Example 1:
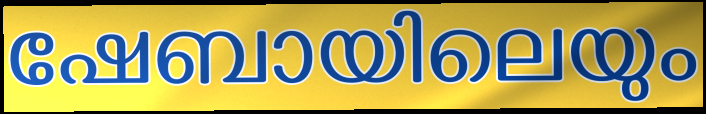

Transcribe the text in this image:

ഷേബായിലെയും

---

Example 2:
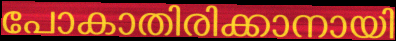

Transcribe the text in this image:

പോകാതിരിക്കാനായി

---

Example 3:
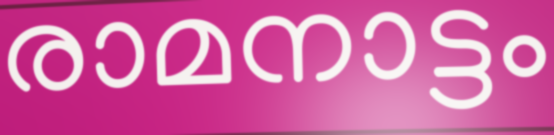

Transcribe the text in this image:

രാമനാട്ടം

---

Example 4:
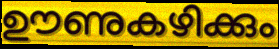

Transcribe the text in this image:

ഊണുകഴിക്കും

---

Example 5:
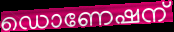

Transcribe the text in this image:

ഡൊണേഷന്